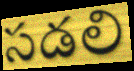
సడలి